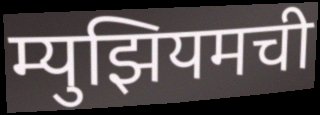
म्युझियमची